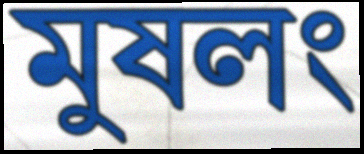
মুষলং